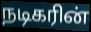
நடிகரின்